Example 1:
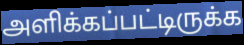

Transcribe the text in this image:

அளிக்கப்பட்டிருக்க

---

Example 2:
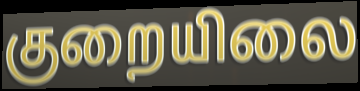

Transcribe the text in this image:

குறையிலை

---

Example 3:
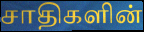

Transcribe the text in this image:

சாதிகளின்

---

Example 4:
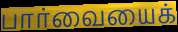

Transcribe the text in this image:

பார்வையைக்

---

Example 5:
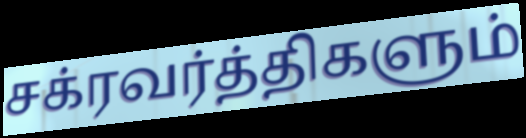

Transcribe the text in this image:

சக்ரவர்த்திகளும்